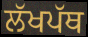
ਲੱਖਪੱਥ